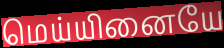
மெய்யினையே